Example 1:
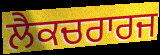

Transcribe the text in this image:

ਲੈਕਚਰਾਰਜ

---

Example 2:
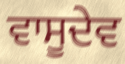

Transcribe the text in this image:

ਵਾਸੂਦੇਵ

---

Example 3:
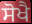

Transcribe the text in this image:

ਸੋਖੈ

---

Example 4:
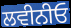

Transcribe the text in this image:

ਲਵੀਨੀਓ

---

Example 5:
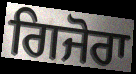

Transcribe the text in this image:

ਗਿਜੋਰਾ